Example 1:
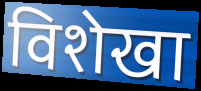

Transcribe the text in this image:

विशेखा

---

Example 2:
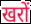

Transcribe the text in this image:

खरों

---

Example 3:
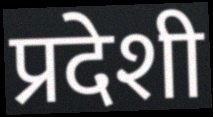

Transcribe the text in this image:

प्रदेशी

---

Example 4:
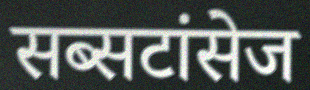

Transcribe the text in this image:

सब्सटांसेज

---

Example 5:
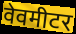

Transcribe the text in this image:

वेवमीटर